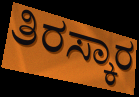
ತಿರಸ್ಕಾರ